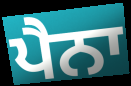
ਪੈਨਾ